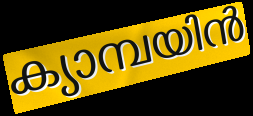
ക്യാമ്പയിൻ